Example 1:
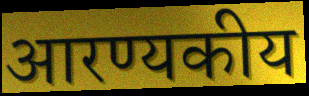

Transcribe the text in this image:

आरण्यकीय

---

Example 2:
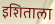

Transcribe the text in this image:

इशिताला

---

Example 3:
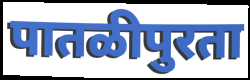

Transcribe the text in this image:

पातळीपुरता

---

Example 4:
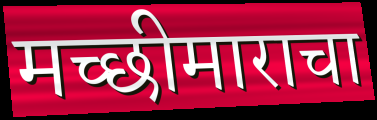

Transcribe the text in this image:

मच्छीमाराचा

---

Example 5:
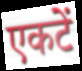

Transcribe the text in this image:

एकटें